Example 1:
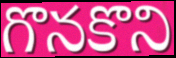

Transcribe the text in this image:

గొనకొని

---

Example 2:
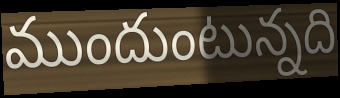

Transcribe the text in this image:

ముందుంటున్నది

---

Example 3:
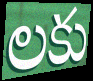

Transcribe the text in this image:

లకు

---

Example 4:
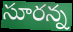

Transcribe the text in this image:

సూరన్న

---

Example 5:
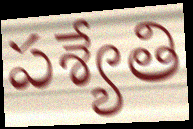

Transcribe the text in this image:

పశ్యేతి